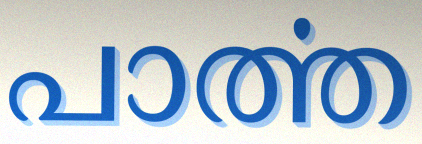
പാൎത്ത